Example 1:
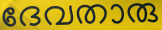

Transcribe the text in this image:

ദേവതാരു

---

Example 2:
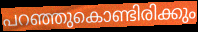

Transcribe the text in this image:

പറഞ്ഞുകൊണ്ടിരിക്കും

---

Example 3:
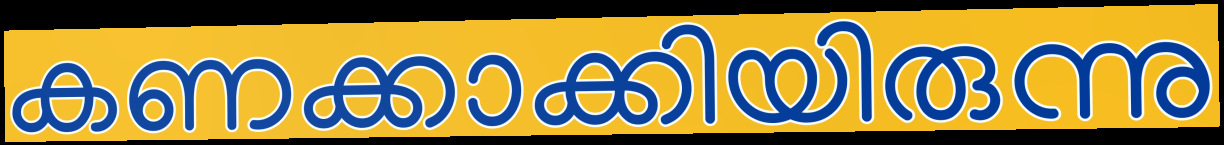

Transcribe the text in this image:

കണക്കാക്കിയിരുന്നു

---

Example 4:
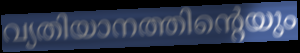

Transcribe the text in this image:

വ്യതിയാനത്തിന്റെയും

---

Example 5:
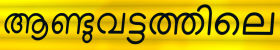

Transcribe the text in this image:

ആണ്ടുവട്ടത്തിലെ